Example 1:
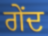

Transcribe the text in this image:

ਗੇਂਦ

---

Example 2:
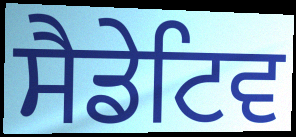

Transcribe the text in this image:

ਸੈਡੇਟਿਵ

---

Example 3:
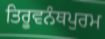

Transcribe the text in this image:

ਤਿਰੂਵਨੰਥਪੁਰਮ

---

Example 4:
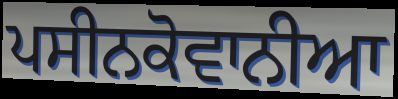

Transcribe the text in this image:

ਪਸੀਨਕੋਵਾਨੀਆ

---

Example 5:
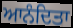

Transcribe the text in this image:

ਆਨੰਦਿਤਾ